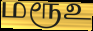
மரூஉ